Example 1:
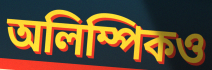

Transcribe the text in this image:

অলিম্পিকও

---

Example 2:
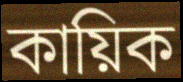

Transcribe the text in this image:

কায়িক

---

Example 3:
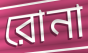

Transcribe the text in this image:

রোনা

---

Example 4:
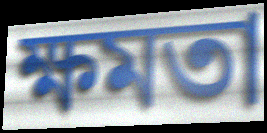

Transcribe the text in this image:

ক্ষমতা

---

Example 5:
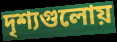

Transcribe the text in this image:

দৃশ্যগুলোয়